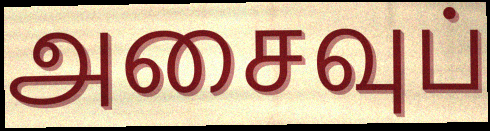
அசைவுப்